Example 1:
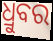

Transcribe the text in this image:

ଧ୍ରୁବର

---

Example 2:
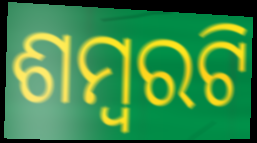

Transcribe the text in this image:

ଶମ୍ବରଟି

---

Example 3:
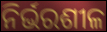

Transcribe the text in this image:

ନିର୍ଭରଶୀଳ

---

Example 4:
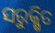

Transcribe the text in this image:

ସରୁକ୍ଷିତ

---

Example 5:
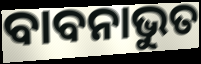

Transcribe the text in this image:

ବାବନାଭୁତ